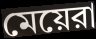
মেয়েরা